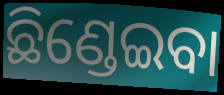
ଛିଣ୍ଡେଇବା